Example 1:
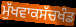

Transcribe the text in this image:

ਮੁੱਖਵਾਕਸੱਚਖੰਡ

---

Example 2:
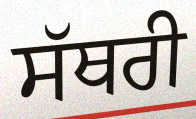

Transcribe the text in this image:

ਸੱਥਰੀ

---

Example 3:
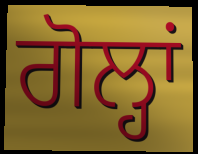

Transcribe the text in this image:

ਗੋਲ੍ਹਾਂ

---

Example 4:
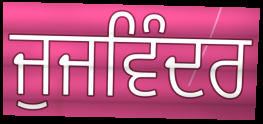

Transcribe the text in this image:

ਜੁਜਵਿੰਦਰ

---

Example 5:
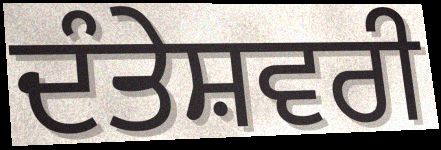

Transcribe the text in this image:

ਦੰਤੇਸ਼ਵਰੀ